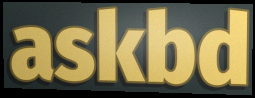
askbd